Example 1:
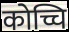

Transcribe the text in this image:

कोच्चि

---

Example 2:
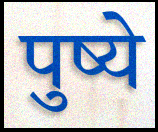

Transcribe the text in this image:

पुष्ये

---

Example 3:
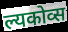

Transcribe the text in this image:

ल्यकोव्स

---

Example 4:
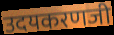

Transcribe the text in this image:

उदयकरणजी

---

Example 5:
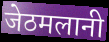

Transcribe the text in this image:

जेठमलानी